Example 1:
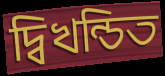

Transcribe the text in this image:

দ্বিখন্ডিত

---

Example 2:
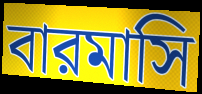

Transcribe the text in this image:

বারমাসি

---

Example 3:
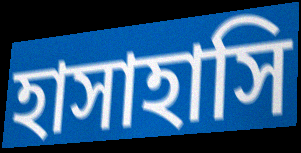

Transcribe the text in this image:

হাসাহাসি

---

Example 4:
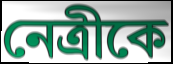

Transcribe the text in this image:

নেত্রীকে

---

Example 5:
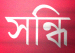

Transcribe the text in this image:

সন্ধি